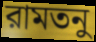
রামতনু